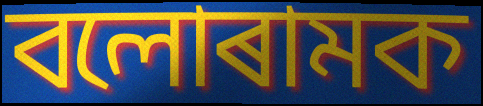
বলোৰামক